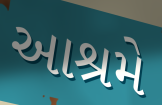
આશ્રમે